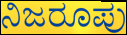
ನಿಜರೂಪು